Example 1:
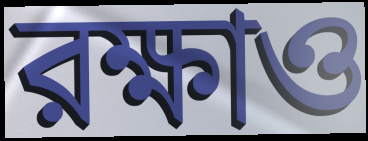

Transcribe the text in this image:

রক্ষাও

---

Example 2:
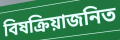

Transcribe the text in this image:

বিষক্রিয়াজনিত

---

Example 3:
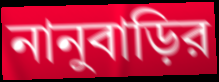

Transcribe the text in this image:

নানুবাড়ির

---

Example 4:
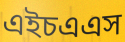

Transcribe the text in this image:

এইচএএস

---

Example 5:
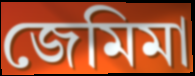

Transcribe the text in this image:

জেমিমা